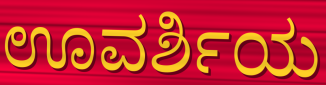
ಊವರ್ಶಿಯ